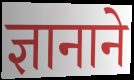
ज्ञानाने